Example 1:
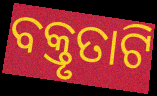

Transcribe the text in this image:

ବକ୍ତୃତାଟି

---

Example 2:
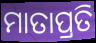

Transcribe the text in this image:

ମାତାପ୍ରତି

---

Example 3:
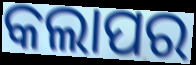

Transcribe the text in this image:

କଲାପର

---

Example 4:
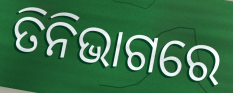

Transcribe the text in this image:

ତିନିଭାଗରେ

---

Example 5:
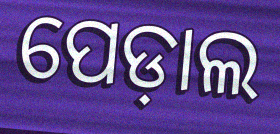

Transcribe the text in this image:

ପେଡ଼ାଲ